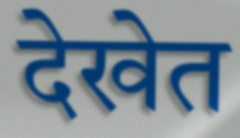
देखेत